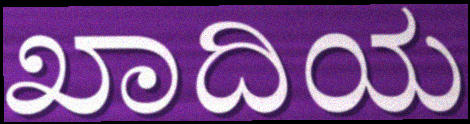
ಖಾದಿಯ